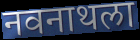
नवनाथला